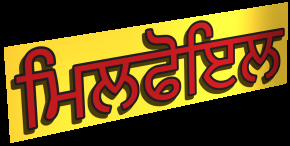
ਮਿਲਫੋਇਲ